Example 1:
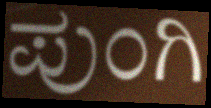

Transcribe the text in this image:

ಪುಂಗಿ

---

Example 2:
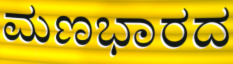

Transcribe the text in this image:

ಮಣಭಾರದ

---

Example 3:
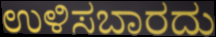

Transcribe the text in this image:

ಉಳಿಸಬಾರದು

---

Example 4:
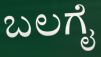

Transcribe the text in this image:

ಬಲಗೈ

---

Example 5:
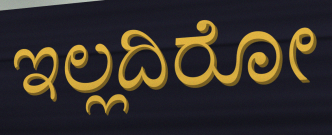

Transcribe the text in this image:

ಇಲ್ಲದಿರೋ